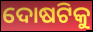
ଦୋଷଟିକୁ